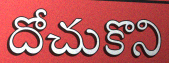
దోచుకొని